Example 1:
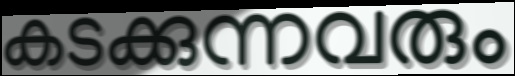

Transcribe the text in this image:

കടക്കുന്നവരും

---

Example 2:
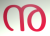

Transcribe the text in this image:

നു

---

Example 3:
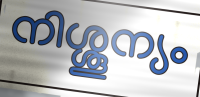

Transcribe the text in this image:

നിശ്ശൂന്യം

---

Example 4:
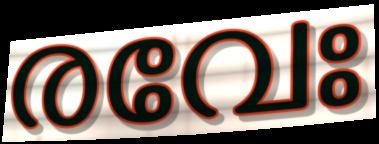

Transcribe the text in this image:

രവേഃ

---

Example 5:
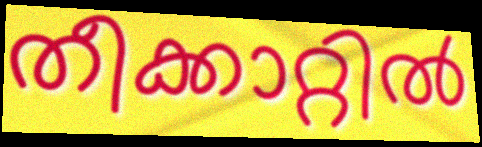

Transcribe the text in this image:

തീക്കാറ്റിൽ